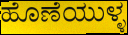
ಹೊಣೆಯುಳ್ಳ